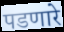
पडणारे